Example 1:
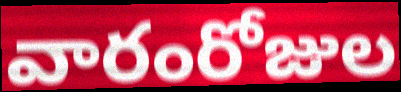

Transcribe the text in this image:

వారంరోజుల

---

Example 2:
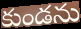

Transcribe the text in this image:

కుండను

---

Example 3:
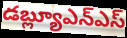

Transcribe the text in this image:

డబ్ల్యూఎన్ఎస్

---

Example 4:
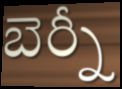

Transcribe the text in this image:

బెర్నీ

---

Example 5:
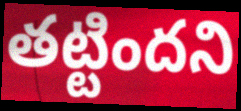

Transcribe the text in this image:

తట్టిందని